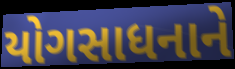
યોગસાધનાને